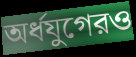
অর্ধযুগেরও